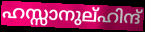
ഹസ്സാനുല്ഹിന്ദ്